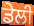
ਡੇਲੀ